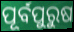
ପୂର୍ବପୁରୁଷ